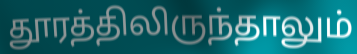
தூரத்திலிருந்தாலும்